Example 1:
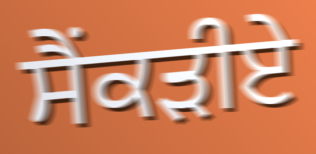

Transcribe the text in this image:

ਸੈਂਕੜੀਏ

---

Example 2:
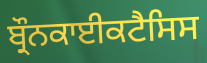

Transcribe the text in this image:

ਬ੍ਰੌਨਕਾਈਕਟੈਸਿਸ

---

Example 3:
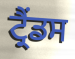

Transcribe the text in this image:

ਟ੍ਰੈਂਡਸ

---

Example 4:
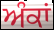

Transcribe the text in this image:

ਅੰਕਾਂ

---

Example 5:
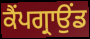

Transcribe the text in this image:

ਕੈਂਪਗ੍ਰਾਉਂਡ